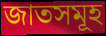
জাতসমূহ